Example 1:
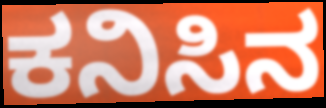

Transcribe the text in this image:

ಕನಿಸಿನ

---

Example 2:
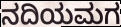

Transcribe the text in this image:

ನದಿಯಮಗ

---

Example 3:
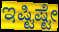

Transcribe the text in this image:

ಇಷ್ಟಿಷ್ಟೇ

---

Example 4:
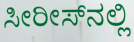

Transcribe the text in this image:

ಸೀರೀಸ್‌ನಲ್ಲಿ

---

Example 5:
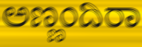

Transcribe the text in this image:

ಅಣ್ಣಂದಿರಾ